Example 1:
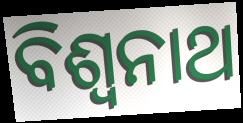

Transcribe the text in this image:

ବିଶ୍ଵନାଥ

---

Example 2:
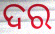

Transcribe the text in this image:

ଦର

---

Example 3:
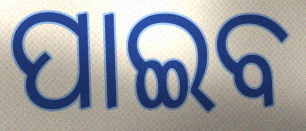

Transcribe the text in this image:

ପାଇବ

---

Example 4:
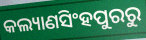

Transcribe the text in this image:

କଲ୍ୟାଣସିଂହପୁରରୁ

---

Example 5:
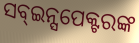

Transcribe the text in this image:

ସବ୍ଇନ୍ସପେକ୍ଟରଙ୍କ